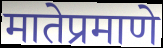
मातेप्रमाणे